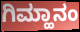
ಗಿಮ್ಹಾನಂ